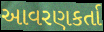
આવરણકર્તા